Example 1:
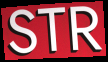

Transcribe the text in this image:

STR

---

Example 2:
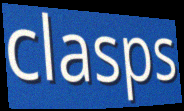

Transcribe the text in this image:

clasps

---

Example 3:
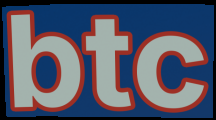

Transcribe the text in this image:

btc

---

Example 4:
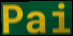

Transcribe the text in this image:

Pai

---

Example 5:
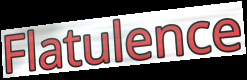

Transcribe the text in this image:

Flatulence